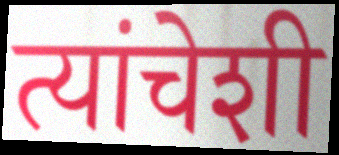
त्यांचेशी